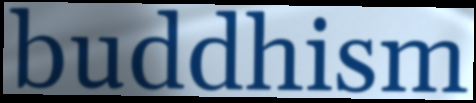
buddhism